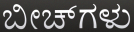
ಬೀಚ್‌ಗಳು